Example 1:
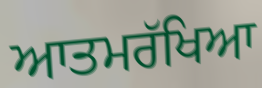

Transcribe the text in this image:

ਆਤਮਰੱਖਿਆ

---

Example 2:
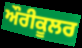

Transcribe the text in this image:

ਔਰੀਕੂਲਰ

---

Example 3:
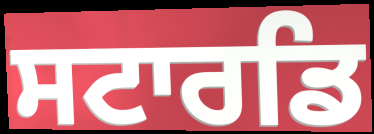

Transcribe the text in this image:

ਸਟਾਰਡਿ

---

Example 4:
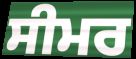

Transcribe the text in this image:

ਸੀਮਰ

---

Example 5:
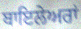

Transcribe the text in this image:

ਬਾਇਲੇਅਰਾਂ